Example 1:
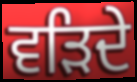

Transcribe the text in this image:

ਵੜਿਦੇ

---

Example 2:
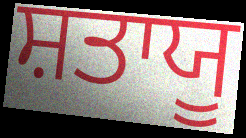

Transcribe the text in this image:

ਸ਼ਤਾਯੂ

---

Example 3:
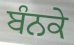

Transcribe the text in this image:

ਬੰਨਕੇ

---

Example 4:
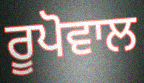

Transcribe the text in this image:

ਰੂਪੋਵਾਲ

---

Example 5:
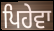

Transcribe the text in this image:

ਪਿਹੇਵਾ